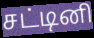
சட்டினி